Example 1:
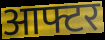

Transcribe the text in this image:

आफ्टर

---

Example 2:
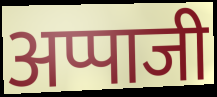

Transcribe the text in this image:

अप्पाजी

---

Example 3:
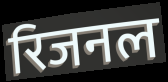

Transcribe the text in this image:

रिजनल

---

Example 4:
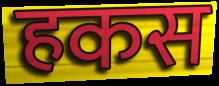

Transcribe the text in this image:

हकस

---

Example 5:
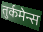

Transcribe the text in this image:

तुर्कमेन्स